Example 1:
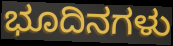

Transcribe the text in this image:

ಭೂದಿನಗಳು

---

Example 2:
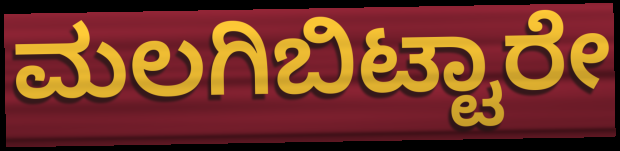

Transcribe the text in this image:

ಮಲಗಿಬಿಟ್ಟಾರೇ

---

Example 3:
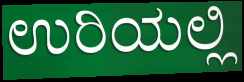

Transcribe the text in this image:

ಉರಿಯಲ್ಲಿ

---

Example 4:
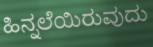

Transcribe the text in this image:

ಹಿನ್ನಲೆಯಿರುವುದು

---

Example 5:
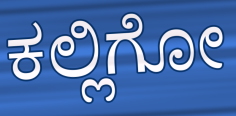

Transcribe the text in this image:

ಕಲ್ಲಿಗೋ